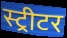
स्ट्रीटर